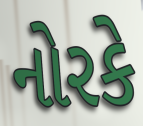
નોરકે